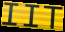
IIT